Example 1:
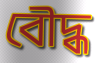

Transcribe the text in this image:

বৌদ্ধ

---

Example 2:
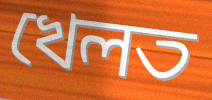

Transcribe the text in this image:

খেলত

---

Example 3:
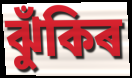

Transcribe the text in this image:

ঝুঁকিৰ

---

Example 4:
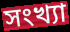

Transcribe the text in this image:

সংখ্যা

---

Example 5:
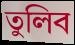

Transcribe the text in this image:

তুলিব